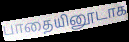
பாதையினூடாக